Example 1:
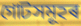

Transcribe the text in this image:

গোটসমূহৰ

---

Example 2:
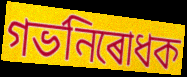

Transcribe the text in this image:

গৰ্ভনিৰোধক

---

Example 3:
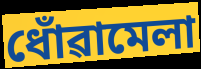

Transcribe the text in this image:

ধোঁৱামেলা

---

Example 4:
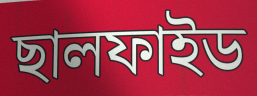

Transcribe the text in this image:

ছালফাইড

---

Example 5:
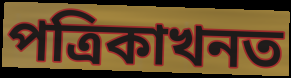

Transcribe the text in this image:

পত্ৰিকাখনত